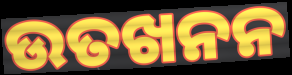
ଉତଖନନ